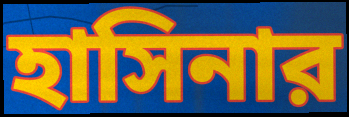
হাসিনার